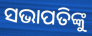
ସଭାପତିଙ୍କୁ